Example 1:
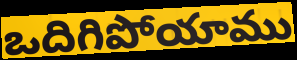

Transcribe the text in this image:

ఒదిగిపోయాము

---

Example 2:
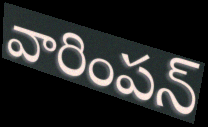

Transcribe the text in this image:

వారింపన్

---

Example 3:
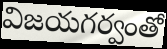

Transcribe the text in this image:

విజయగర్వంతో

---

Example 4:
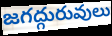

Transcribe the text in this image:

జగద్గురువులు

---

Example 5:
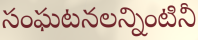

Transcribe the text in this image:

సంఘటనలన్నింటినీ